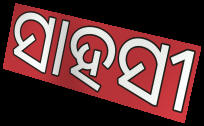
ସାହସୀ